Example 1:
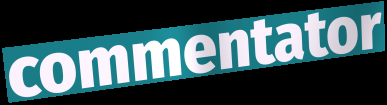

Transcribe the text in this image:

commentator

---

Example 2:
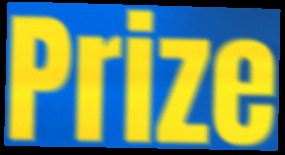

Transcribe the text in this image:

Prize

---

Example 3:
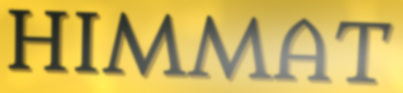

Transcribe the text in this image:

HIMMAT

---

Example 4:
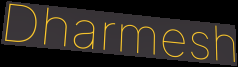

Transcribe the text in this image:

Dharmesh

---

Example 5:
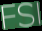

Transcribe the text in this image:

FSI